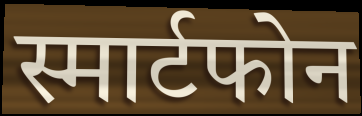
स्मार्टफोन